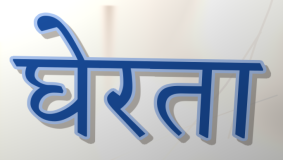
घेरता